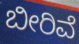
ಬೀರಿವೆ